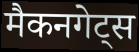
मैकनगेट्स